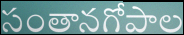
సంతానగోపాల